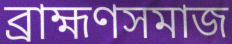
ব্রাহ্মণসমাজ